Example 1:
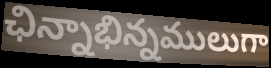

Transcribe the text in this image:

ఛిన్నాభిన్నములుగా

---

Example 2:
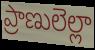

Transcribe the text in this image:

ప్రాణులెల్లా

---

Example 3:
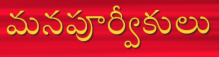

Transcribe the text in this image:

మనపూర్వీకులు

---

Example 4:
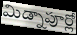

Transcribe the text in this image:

మిడ్నాపూర్లో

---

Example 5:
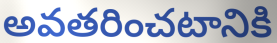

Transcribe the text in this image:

అవతరించటానికి